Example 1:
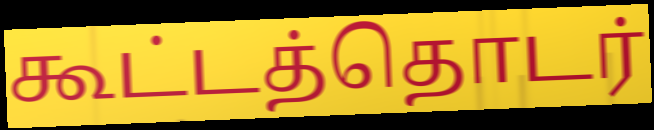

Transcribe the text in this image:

கூட்டத்தொடர்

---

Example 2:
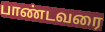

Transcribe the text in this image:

பாண்டவரை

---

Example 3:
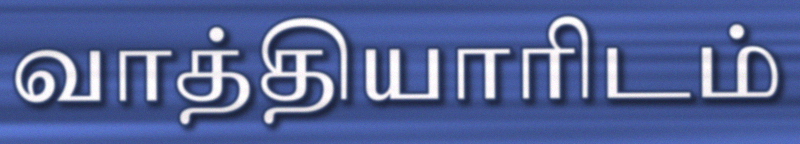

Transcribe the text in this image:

வாத்தியாரிடம்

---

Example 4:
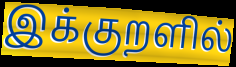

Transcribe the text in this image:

இக்குறளில்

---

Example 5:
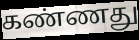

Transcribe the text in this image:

கண்ணது